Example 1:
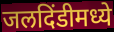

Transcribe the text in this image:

जलदिंडीमध्ये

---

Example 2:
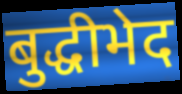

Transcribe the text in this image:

बुद्धीभेद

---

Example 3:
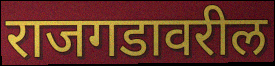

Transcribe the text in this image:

राजगडावरील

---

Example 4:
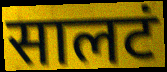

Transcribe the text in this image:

सालटं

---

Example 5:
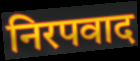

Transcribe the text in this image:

निरपवाद